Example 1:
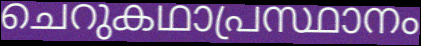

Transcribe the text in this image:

ചെറുകഥാപ്രസ്ഥാനം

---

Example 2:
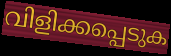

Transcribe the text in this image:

വിളിക്കപ്പെടുക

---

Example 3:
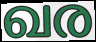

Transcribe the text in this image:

ഖര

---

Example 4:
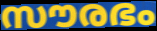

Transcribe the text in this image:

സൗരഭം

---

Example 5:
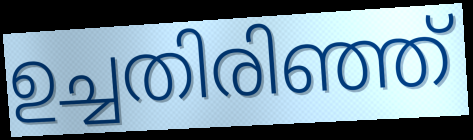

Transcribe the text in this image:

ഉച്ചതിരിഞ്ഞ്